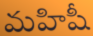
మహిషీ